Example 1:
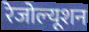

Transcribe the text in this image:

रेजोल्यूशन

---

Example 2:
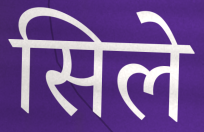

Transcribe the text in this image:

सिले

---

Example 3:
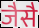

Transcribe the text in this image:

जैसै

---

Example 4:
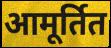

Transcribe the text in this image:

आमूर्तित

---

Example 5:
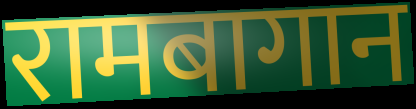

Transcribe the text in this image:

रामबागान